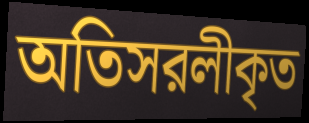
অতিসরলীকৃত